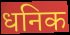
धनिक